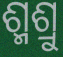
ଶ୍ମଶ୍ରୁ